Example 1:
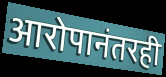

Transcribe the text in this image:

आरोपानंतरही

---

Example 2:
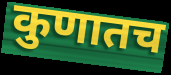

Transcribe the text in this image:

कुणातच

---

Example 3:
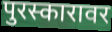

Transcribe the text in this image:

पुरस्कारावर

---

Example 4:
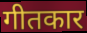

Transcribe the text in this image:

गीतकार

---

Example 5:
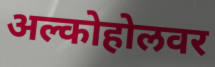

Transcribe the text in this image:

अल्कोहोलवर